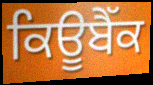
ਕਿਊਬੈੱਕ